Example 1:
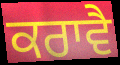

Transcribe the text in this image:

ਕਰਾਵੈ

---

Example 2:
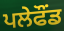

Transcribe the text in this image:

ਪਲੇਫੌਂਡ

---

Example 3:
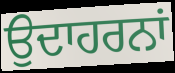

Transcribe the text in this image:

ਉਦਾਹਰਨਾਂ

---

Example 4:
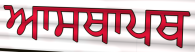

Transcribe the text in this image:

ਆਸਥਾਪਥ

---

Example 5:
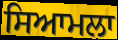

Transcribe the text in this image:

ਸਿਆਮਲਾ